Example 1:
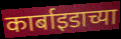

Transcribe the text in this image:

कार्बाइडाच्या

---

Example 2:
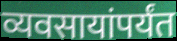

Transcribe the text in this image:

व्यवसायांपर्यंत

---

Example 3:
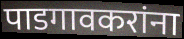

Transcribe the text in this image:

पाडगावकरांना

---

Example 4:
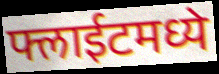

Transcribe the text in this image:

फ्लाईटमध्ये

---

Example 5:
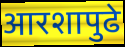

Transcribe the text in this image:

आरशापुढे